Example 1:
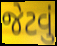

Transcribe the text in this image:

જેટવું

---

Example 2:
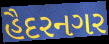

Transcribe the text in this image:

હૈદરનગર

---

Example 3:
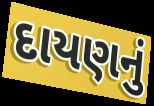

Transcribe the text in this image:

દાયણનું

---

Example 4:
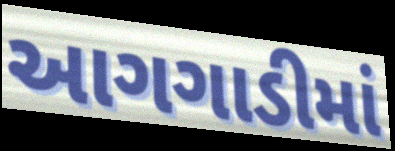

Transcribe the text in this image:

આગગાડીમાં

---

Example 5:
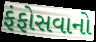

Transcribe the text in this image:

ફંફોસવાનો